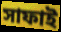
সাফাই